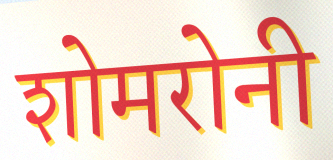
शोमरोनी